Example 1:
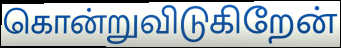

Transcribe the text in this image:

கொன்றுவிடுகிறேன்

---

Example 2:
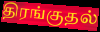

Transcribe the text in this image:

திரங்குதல்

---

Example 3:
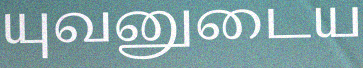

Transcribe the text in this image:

யுவனுடைய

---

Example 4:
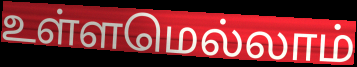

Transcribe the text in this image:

உள்ளமெல்லாம்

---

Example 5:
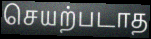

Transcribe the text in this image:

செயற்படாத